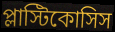
প্লাস্টিকোসিস